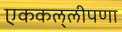
एककल्लीपणा